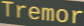
Tremor